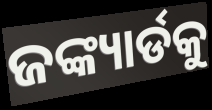
ଜଙ୍କ୍ୟାର୍ଡକୁ